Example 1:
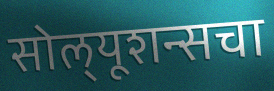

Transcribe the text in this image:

सोल्यूशन्सचा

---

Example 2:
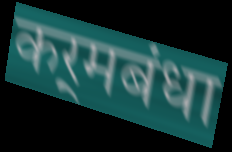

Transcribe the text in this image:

कर्मबंधा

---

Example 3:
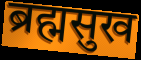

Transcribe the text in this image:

ब्रह्मसुख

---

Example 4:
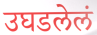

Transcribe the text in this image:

उघडलेलं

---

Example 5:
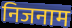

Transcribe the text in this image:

निजनाम